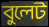
বুলেট